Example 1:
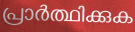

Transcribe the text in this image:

പ്രാർത്ഥിക്കുക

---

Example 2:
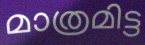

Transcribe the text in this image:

മാത്രമിട്ട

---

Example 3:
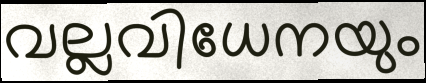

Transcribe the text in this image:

വല്ലവിധേനയും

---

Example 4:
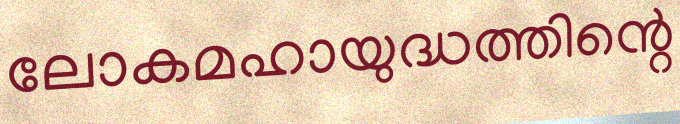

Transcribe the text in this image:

ലോകമഹായുദ്ധത്തിന്റെ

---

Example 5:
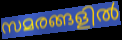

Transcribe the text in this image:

സമരങ്ങളിൽ